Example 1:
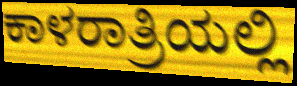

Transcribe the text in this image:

ಕಾಳರಾತ್ರಿಯಲ್ಲಿ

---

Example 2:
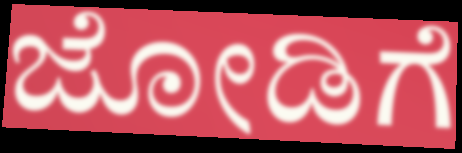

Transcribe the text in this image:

ಜೋಡಿಗೆ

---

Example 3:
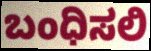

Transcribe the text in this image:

ಬಂಧಿಸಲಿ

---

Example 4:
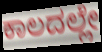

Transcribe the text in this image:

ಕಾಲದಲ್ಲೇ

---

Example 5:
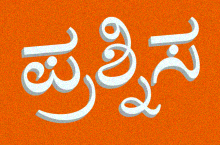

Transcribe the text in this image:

ಪ್ರಶ್ನಿಸ